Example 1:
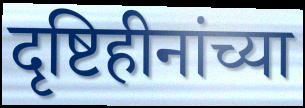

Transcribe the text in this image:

दृष्टिहीनांच्या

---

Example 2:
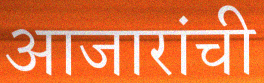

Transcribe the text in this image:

आजारांची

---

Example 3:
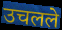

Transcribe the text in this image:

उचलले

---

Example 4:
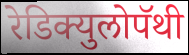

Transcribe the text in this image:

रेडिक्युलोपॅथी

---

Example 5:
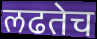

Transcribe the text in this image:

लढतेच